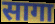
सागा